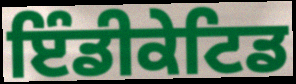
ਇੰਡੀਕੇਟਿਡ